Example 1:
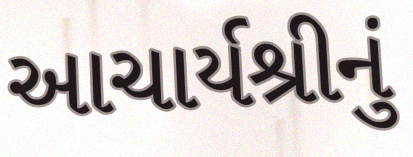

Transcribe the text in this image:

આચાર્યશ્રીનું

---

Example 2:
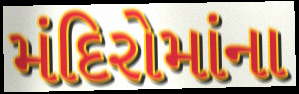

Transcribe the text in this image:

મંદિરોમાંના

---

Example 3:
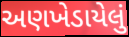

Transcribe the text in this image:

અણખેડાયેલું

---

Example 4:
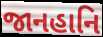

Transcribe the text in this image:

જાનહાનિ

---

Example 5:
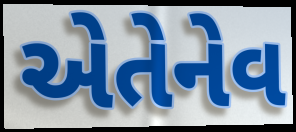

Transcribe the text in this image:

એતેનેવ